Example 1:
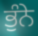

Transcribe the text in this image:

ਭੁੰਨੇ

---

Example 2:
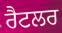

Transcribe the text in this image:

ਰੈਟਲਰ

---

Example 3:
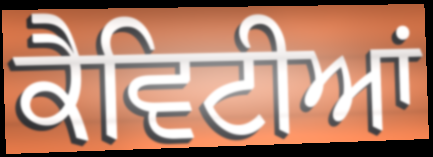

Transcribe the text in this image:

ਕੈਵਿਟੀਆਂ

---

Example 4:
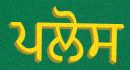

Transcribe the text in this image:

ਪਲੋਸ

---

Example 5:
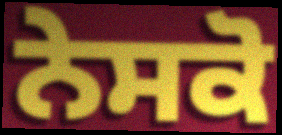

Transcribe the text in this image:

ਨੇਸਕੋ